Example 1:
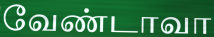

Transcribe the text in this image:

வேண்டாவா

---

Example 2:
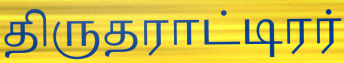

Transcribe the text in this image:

திருதராட்டிரர்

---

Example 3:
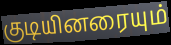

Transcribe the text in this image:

குடியினரையும்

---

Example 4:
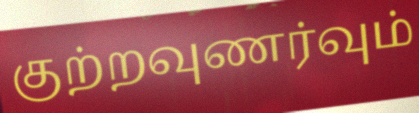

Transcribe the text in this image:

குற்றவுணர்வும்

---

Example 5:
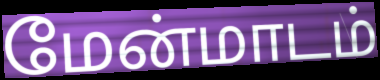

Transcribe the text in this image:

மேன்மாடம்